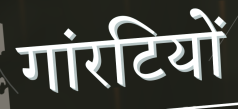
गांरटियों